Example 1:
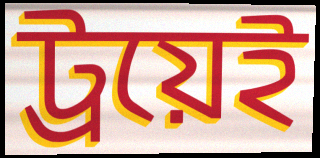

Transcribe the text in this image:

ট্রয়েই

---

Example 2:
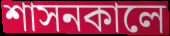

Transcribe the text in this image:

শাসনকালে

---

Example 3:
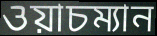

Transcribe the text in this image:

ওয়াচম্যান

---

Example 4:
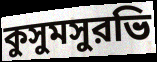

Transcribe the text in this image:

কুসুমসুরভি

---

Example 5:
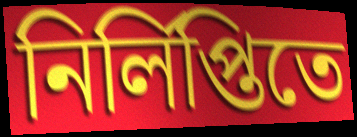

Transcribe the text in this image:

নির্লিপ্তিতে